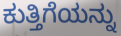
ಕುತ್ತಿಗೆಯನ್ನು